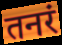
तनरं